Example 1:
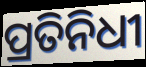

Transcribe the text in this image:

ପ୍ରତିନିଧୀ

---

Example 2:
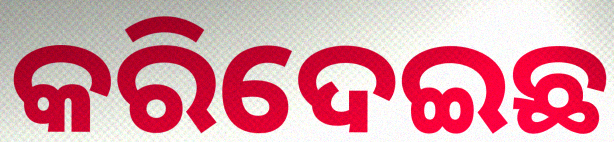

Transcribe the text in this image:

କରିଦେଇଛ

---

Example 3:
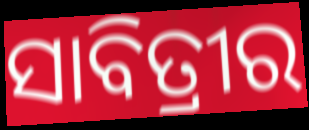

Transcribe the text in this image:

ସାବିତ୍ରୀର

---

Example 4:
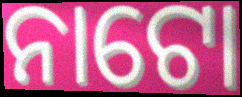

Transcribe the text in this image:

ନାଟୋ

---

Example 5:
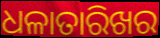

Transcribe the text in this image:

ଧଳାତାରିଖର